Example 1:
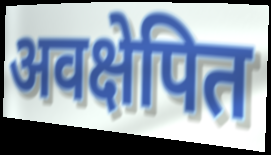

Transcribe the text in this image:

अवक्षेपित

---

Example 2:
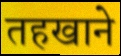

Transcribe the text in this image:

तहखाने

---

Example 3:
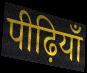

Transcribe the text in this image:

पीढ़ियाँ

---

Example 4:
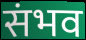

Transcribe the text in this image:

संभव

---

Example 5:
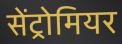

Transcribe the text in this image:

सेंट्रोमियर